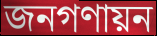
জনগণায়ন